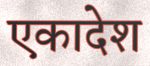
एकादेश